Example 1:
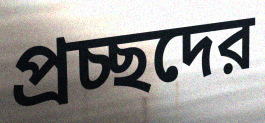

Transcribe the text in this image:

প্রচ্ছদের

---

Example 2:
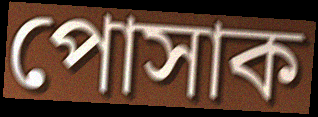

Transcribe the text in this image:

পোসাক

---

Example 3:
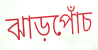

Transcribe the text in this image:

ঝাড়পোঁচ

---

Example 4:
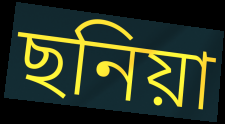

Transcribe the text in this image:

ছনিয়া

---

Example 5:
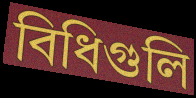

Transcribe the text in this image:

বিধিগুলি